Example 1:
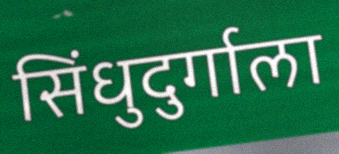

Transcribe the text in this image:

सिंधुदुर्गाला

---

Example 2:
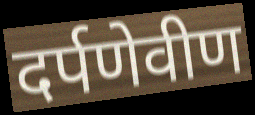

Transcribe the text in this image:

दर्पणेवीण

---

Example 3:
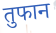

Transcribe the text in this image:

तुफान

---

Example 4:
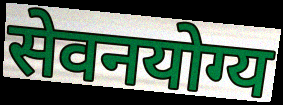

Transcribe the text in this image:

सेवनयोग्य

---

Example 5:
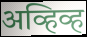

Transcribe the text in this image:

अव्हिव्ह